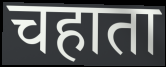
चहाता